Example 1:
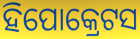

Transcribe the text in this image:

ହିପୋକ୍ରେଟସ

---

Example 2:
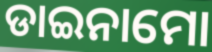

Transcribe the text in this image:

ଡାଇନାମୋ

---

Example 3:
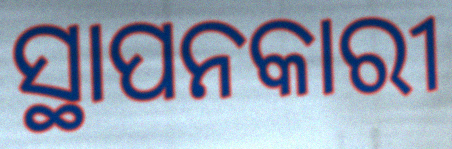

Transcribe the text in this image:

ସ୍ଥାପନକାରୀ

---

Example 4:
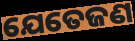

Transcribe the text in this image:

ଯେତେଜଣ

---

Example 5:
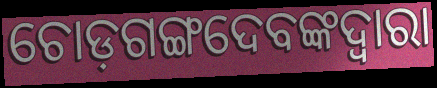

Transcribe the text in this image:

ଚୋଡ଼ଗଙ୍ଗଦେବଙ୍କଦ୍ୱାରା